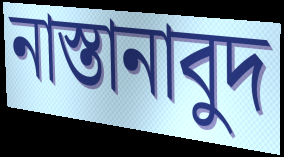
নাস্তানাবুদ